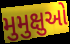
મુમુક્ષુઓ